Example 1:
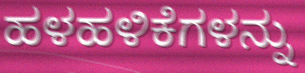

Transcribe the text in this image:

ಹಳಹಳಿಕೆಗಳನ್ನು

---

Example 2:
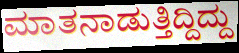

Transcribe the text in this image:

ಮಾತನಾಡುತ್ತಿದ್ದಿದ್ದು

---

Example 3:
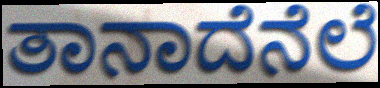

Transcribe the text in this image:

ತಾನಾದೆನೆಲೆ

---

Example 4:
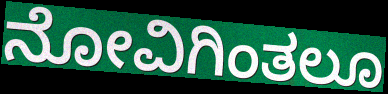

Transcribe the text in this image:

ನೋವಿಗಿಂತಲೂ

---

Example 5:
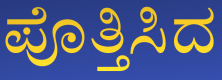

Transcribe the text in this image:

ಪೊತ್ತಿಸಿದ